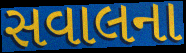
સવાલના